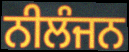
ਨੀਲੰਜਨ